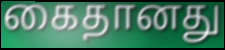
கைதானது